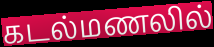
கடல்மணலில்